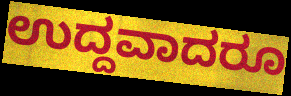
ಉದ್ದವಾದರೂ